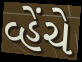
વ્હેંચે